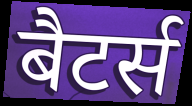
बैटर्स